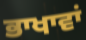
ਭਾਖਾਵਾਂ